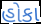
હોકા